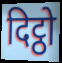
दिट्ठो